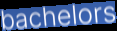
bachelors